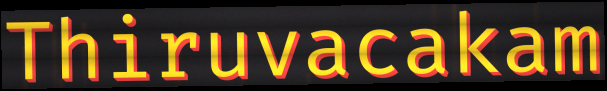
Thiruvacakam